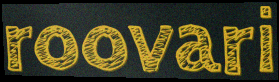
roovari